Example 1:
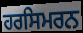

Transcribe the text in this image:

ਹਰਸਿਮਰਨ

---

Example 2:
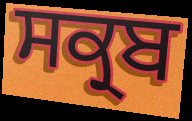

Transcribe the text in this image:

ਸਕ੍ਰਬ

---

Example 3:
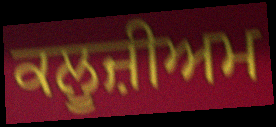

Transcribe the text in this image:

ਕਲੂਜ਼ੀਅਮ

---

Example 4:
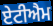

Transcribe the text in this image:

ਏਟੀਐਮ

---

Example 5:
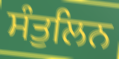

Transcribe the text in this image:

ਸੰਤੁਲਿਨ